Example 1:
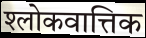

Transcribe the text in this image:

श्लोकवात्तिक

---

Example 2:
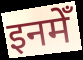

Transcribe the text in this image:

इनमेँ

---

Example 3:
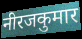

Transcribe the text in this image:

नीरजकुमार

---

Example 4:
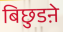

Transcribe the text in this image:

बिछुडऩे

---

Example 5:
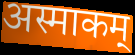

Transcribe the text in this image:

अस्माकम्